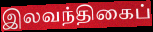
இலவந்திகைப்